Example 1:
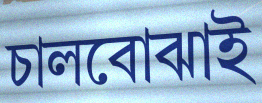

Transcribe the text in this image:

চালবোঝাই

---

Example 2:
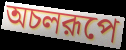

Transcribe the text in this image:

অচলরূপে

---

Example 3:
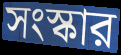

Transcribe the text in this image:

সংস্কার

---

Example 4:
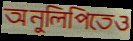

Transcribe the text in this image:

অনুলিপিতেও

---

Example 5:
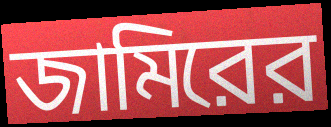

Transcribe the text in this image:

জামিরের